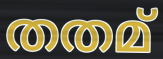
തതമ്